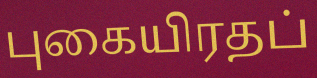
புகையிரதப்